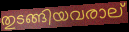
തുടങ്ങിയവരാല്